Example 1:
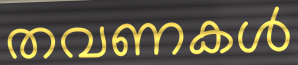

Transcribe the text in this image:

തവണകൾ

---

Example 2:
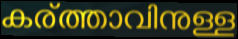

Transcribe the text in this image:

കര്ത്താവിനുള്ള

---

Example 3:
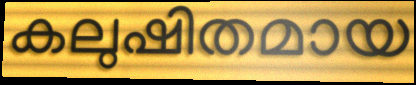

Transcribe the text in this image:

കലുഷിതമായ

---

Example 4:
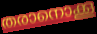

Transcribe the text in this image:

തരാനൊക്കൂ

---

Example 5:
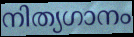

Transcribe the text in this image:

നിത്യഗാനം